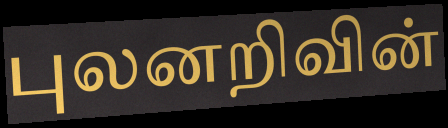
புலனறிவின்